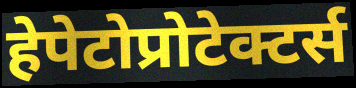
हेपेटोप्रोटेक्टर्स